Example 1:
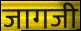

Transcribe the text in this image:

जागजी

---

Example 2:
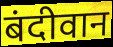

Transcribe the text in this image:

बंदीवान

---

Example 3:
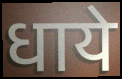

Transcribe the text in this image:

धाये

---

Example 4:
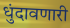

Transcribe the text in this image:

धुंदावणारी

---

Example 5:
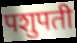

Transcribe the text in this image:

पशुपती